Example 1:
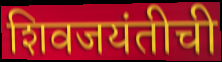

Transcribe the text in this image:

शिवजयंतीची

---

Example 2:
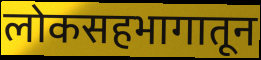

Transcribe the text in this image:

लोकसहभागातून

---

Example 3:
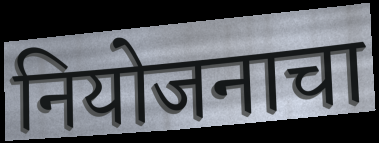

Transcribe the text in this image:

नियोजनाचा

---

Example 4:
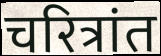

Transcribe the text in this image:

चरित्रांत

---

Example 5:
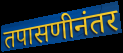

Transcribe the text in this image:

तपासणीनंतर